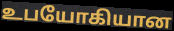
உபயோகியான